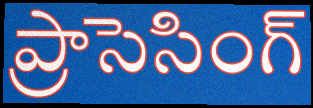
ప్రాసెసింగ్